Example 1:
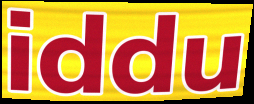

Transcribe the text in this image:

iddu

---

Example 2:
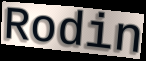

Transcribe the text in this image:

Rodin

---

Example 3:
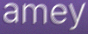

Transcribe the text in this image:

amey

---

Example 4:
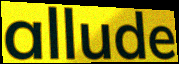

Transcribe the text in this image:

allude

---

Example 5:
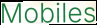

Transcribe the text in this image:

Mobiles